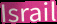
Israil